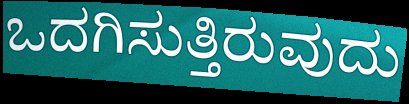
ಒದಗಿಸುತ್ತಿರುವುದು